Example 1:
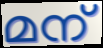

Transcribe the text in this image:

മന്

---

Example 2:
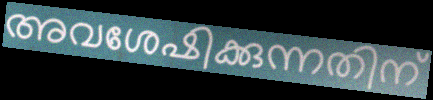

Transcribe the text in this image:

അവശേഷിക്കുന്നതിന്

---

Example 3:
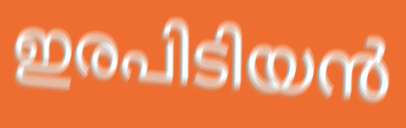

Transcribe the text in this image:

ഇരപിടിയൻ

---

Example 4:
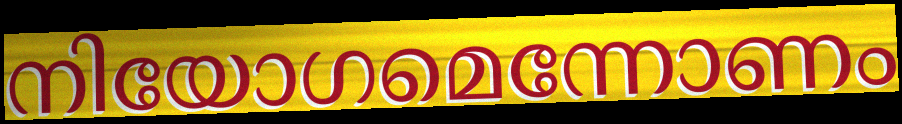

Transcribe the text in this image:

നിയോഗമെന്നോണം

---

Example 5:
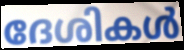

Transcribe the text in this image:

ദേശികൾ